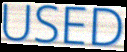
USED